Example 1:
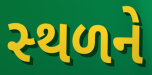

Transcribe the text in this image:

સ્‍થળને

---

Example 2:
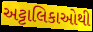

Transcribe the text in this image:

અટ્ટાલિકાઓથી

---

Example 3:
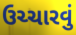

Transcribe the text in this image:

ઉચ્ચારવું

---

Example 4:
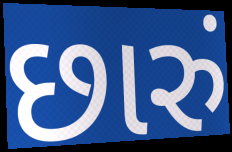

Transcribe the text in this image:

છારું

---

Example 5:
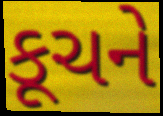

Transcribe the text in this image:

કૂચને